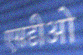
एसडीओ